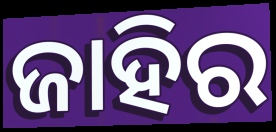
ଜାହିର